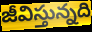
జీవిస్తున్నది